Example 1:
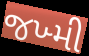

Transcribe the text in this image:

જખ્મી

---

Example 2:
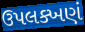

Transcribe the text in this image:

ઉપલક્ખણં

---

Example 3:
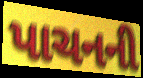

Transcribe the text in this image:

પાચનની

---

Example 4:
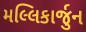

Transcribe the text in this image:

મલ્લિકાર્જુન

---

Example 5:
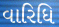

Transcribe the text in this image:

વારિધિ